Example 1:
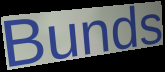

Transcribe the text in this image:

Bunds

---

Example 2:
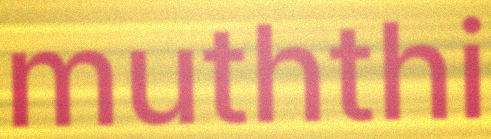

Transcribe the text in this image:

muththi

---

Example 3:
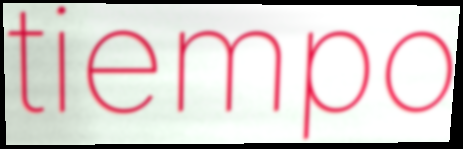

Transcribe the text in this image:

tiempo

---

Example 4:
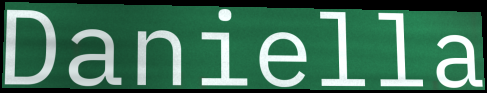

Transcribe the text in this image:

Daniella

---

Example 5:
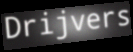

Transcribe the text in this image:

Drijvers